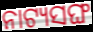
ନାଟ୍ୟସଙ୍ଘ